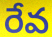
రేవ